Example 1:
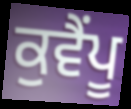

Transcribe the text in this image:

ਕੁਵੈਂਪੂ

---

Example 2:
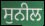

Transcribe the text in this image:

ਸੁਨੀਲ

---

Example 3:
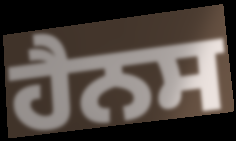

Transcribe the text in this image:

ਹੈਨਸ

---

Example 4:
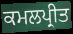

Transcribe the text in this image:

ਕਮਲਪ੍ਰੀਤ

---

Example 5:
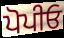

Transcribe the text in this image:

ਪੋਪੀਓ